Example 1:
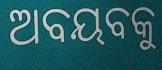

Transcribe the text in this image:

ଅବୟବକୁ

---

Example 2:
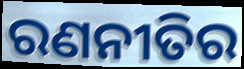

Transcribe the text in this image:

ରଣନୀତିର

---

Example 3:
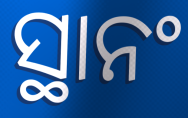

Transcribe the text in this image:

ସ୍ଥାନଂ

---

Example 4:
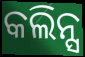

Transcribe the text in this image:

କଲିନ୍ସ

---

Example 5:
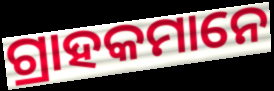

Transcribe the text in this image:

ଗ୍ରାହକମାନେ